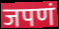
जपणं